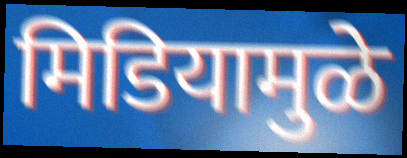
मिडियामुळे